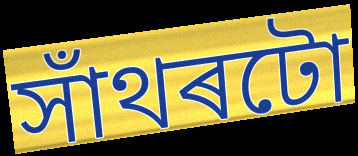
সাঁথৰটো